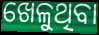
ଖେଳୁଥିବା